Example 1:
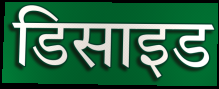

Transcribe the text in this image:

डिसाइड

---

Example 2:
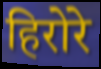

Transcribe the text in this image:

हिरोरे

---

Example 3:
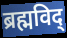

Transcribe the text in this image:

ब्रह्मविद्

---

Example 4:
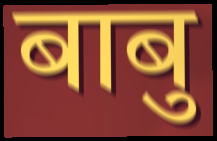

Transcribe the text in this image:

बाबु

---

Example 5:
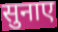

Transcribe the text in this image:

सुनाए